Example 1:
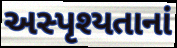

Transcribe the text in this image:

અસ્પૃશ્યતાનાં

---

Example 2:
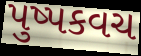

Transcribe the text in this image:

પુષ્પકવચ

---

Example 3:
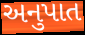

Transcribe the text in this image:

અનુપાત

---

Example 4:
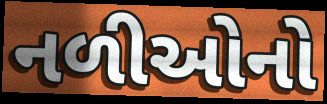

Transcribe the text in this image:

નળીઓનો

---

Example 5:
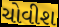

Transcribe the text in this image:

ચોવીશ